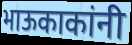
भाऊकाकांनी